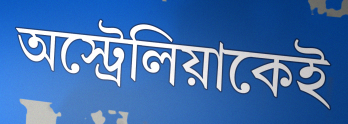
অস্ট্রেলিয়াকেই